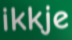
ikkje